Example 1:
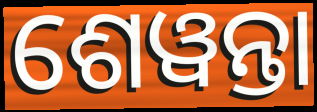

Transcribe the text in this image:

ଶେୱନ୍ତା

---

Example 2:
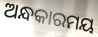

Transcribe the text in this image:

ଅନ୍ଧକାରମୟ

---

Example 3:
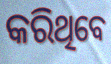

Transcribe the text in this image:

କରିଥିବେ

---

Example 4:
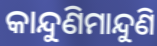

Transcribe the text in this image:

କାନ୍ଦୁଣିମାନ୍ଦୁଣି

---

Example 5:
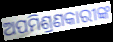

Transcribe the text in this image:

ଅପମିଶ୍ରଣକାରୀଙ୍କ